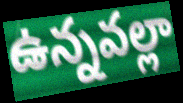
ఉన్నవల్లా